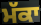
ਮੱਕਾ